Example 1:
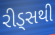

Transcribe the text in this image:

રીડ્સથી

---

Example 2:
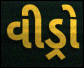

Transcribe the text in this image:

વીડ્રો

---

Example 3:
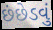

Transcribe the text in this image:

છંછેડવું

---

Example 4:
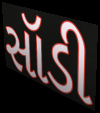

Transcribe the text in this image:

સૉડી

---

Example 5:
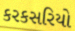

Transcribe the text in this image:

કરકસરિયો